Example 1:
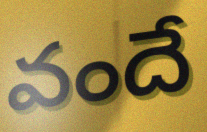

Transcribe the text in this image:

వందే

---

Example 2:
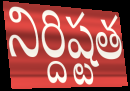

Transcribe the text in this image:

నిర్దిష్టత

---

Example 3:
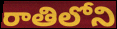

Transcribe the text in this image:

రాతిలోని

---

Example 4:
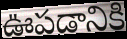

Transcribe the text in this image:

ఊపడానికి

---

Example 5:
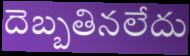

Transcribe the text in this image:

దెబ్బతినలేదు